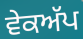
ਵੇਕਅੱਪ